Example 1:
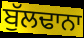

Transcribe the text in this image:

ਬੁੱਲਢਾਨਾ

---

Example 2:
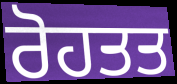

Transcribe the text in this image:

ਰੋਹਤਤ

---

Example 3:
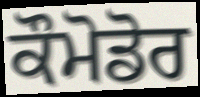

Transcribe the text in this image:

ਕੌਮੋਡੋਰ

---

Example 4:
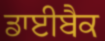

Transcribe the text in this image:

ਡਾਈਬੈਕ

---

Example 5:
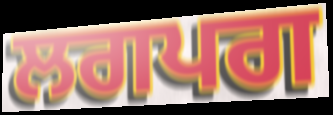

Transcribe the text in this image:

ਲਗਪਗ